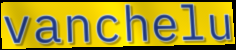
vanchelu